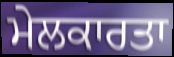
ਮੇਲਕਾਰਤਾ